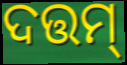
ଦତ୍ତମ୍